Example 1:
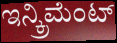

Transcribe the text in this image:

ಇನ್ಕ್ರಿಮೆಂಟ್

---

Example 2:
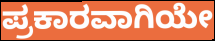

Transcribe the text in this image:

ಪ್ರಕಾರವಾಗಿಯೇ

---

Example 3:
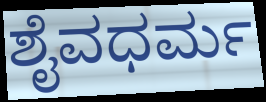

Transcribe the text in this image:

ಶೈವಧರ್ಮ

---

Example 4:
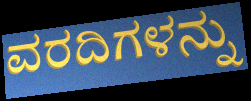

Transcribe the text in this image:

ವರದಿಗಳನ್ನು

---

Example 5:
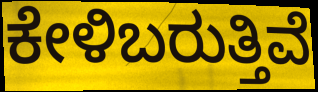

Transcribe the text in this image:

ಕೇಳಿಬರುತ್ತಿವೆ